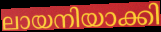
ലായനിയാക്കി